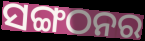
ସଙ୍ଗଠନର